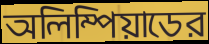
অলিম্পিয়াডের